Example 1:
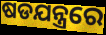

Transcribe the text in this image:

ଷଡଯନ୍ତ୍ରରେ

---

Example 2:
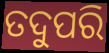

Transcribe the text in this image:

ତଦୁପରି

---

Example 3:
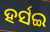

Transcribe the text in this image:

ହର୍ସଇ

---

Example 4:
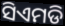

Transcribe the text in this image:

ସିଏମଡି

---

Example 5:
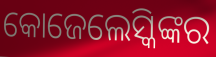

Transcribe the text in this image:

କୋଜେଲେସ୍କିଙ୍କର